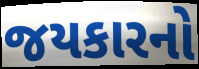
જયકારનો